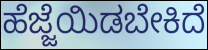
ಹೆಜ್ಜೆಯಿಡಬೇಕಿದೆ